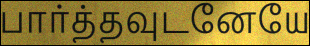
பார்த்தவுடனேயே